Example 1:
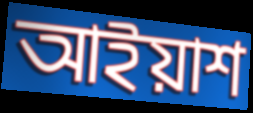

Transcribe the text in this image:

আইয়াশ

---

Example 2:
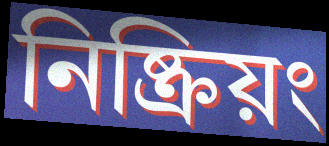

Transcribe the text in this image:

নিষ্ক্রিয়ং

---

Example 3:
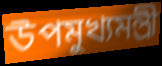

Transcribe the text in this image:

উপমুখ্যমন্ত্রী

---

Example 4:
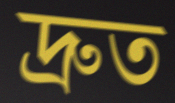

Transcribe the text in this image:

দ্রুত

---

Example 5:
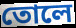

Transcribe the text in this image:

তোলে